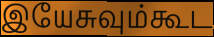
இயேசுவும்கூட